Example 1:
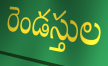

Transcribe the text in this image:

రెండస్తుల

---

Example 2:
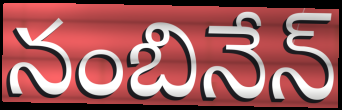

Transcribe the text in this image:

నంబినేన్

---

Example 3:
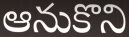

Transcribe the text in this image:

ఆనుకొని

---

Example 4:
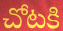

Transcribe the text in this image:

చోటకి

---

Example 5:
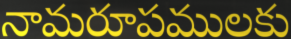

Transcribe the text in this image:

నామరూపములకు